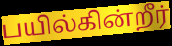
பயில்கின்றீர்